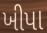
ખીપા